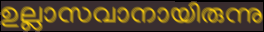
ഉല്ലാസവാനായിരുന്നു